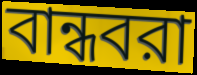
বান্ধবরা